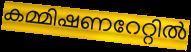
കമ്മിഷണറേറ്റിൽ